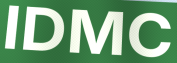
IDMC